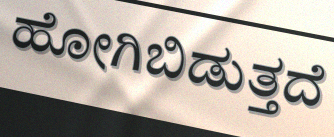
ಹೋಗಿಬಿಡುತ್ತದೆ